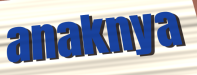
anaknya